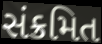
સંક્રમિત